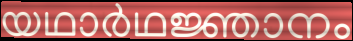
യഥാർഥജ്ഞാനം